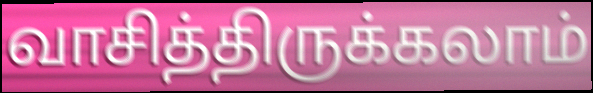
வாசித்திருக்கலாம்